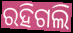
ରହିଗଲି